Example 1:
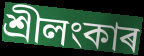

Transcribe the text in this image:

শ্ৰীলংকাৰ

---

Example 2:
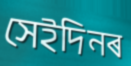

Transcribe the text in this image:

সেইদিনৰ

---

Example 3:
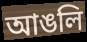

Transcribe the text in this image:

আঙলি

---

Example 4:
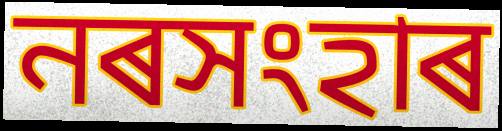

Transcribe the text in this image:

নৰসংহাৰ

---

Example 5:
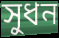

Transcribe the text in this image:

সুধন